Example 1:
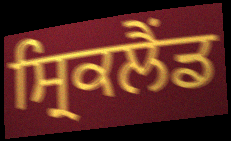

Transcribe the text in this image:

ਸ੍ਰਿਕਲੈਂਡ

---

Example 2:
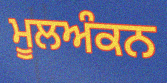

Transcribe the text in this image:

ਮੂਲਅੰਕਨ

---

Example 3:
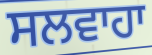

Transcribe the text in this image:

ਸਲਵਾਹਾ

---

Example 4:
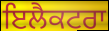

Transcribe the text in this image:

ਇਲੈਕਟਰਾ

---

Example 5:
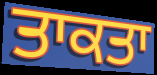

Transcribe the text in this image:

ਤਾਕਤਾ